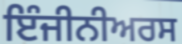
ਇੰਜੀਨੀਅਰਸ